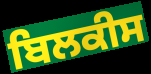
ਬਿਲਕੀਸ